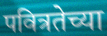
पवित्रतेच्या